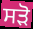
ਸੜੋ